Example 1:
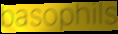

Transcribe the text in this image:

basophils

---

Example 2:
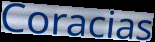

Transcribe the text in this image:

Coracias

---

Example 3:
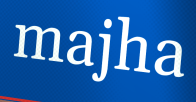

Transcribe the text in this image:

majha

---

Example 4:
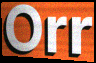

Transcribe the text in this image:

Orr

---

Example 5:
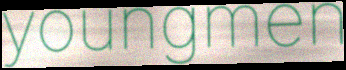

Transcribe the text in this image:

youngmen